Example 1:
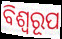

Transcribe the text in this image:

ବିଶ୍ବରୂପ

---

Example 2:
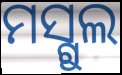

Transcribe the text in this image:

ମସ୍ଗୁଲ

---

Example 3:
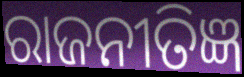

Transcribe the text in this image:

ରାଜନୀତିଜ୍ଞ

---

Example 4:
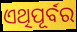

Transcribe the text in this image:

ଏଥିପୂର୍ବର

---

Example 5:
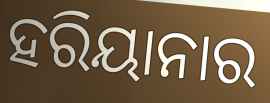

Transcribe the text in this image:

ହରିୟାନାର